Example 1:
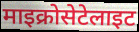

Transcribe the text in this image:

माइक्रोसेटेलाइट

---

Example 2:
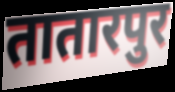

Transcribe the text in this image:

तातारपुर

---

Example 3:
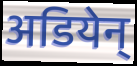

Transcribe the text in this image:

अडियेन्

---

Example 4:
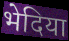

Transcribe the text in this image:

भेदिया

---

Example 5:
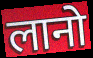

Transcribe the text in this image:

लानो